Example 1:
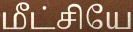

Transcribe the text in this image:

மீட்சியே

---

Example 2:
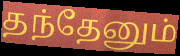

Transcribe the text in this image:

தந்தேனும்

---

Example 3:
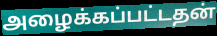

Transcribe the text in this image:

அழைக்கப்பட்டதன்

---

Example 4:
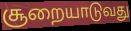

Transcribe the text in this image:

சூறையாடுவது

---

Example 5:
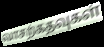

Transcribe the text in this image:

வாசற்கதவுகள்